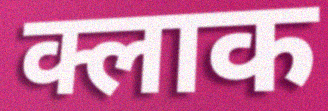
क्लाक